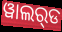
ୱାଲର୍‌ଡ